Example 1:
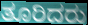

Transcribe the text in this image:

ತೂರಿದರು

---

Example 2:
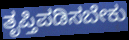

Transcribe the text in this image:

ತೃಪ್ತಿಪಡಿಸಬೇಕು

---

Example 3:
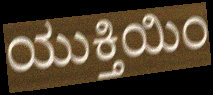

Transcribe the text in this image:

ಯುಕ್ತಿಯಿಂ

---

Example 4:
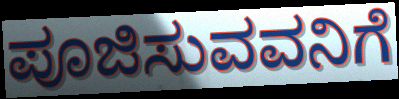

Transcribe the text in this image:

ಪೂಜಿಸುವವನಿಗೆ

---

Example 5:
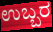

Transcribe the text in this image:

ಉಬ್ಬರ